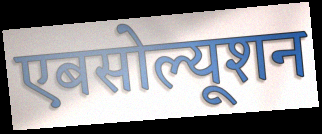
एबसोल्यूशन